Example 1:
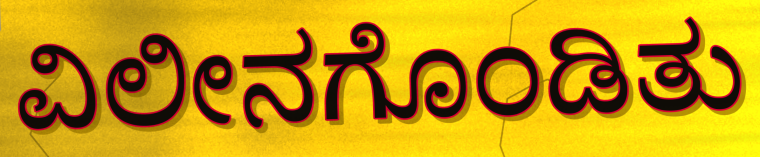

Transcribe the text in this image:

ವಿಲೀನಗೊಂಡಿತು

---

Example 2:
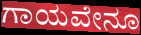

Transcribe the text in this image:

ಗಾಯವೇನೂ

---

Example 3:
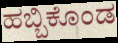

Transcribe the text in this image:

ಹಬ್ಬಿಕೊಂಡ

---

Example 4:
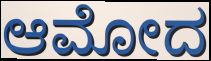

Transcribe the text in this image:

ಆಮೋದ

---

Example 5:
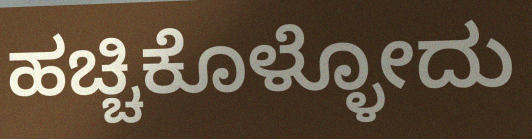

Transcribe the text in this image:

ಹಚ್ಚಿಕೊಳ್ಳೋದು